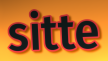
sitte